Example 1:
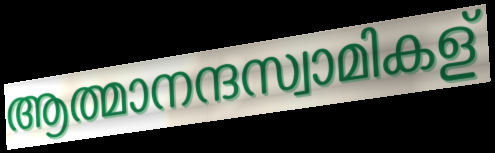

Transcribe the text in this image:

ആത്മാനന്ദസ്വാമികള്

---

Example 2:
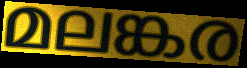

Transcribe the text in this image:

മലങ്കര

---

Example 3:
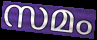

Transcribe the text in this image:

സമം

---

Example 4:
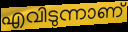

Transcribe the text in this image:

എവിടുന്നാണ്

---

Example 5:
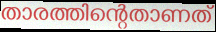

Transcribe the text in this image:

താരത്തിന്റെതാണത്